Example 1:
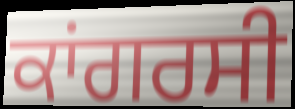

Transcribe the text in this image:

ਕਾਂਗਰਸੀ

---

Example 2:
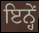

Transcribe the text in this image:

ਇਨ੍ਹੇਂ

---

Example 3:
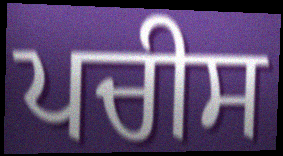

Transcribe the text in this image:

ਪਚੀਸ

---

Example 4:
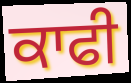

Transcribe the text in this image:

ਕਾਫੀ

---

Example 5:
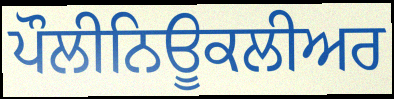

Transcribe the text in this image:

ਪੌਲੀਨਿਊਕਲੀਅਰ